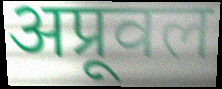
अप्रूवल